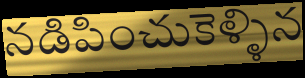
నడిపించుకెళ్ళిన